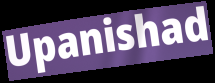
Upanishad